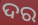
ଦର